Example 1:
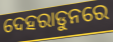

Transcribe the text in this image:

ଦେହରାଡୁନରେ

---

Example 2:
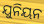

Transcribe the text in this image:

ଯୁନିୟନ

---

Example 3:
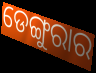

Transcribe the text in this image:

ଡେଙ୍ଗୁରାର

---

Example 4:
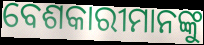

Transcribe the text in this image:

ବେଶକାରୀମାନଙ୍କୁ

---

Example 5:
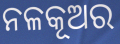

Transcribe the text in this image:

ନଳକୂଅର